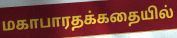
மகாபாரதக்கதையில்